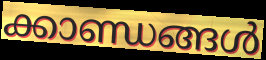
ക്കാണ്ഡങ്ങൾ